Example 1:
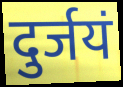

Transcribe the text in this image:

दुर्जयं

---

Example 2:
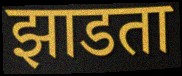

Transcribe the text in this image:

झाडता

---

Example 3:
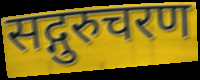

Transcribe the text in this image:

सद्गुरुचरण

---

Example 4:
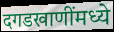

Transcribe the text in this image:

दगडखाणींमध्ये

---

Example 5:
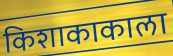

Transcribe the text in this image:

किशाकाकाला